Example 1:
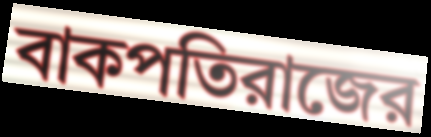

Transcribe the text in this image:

বাকপতিরাজের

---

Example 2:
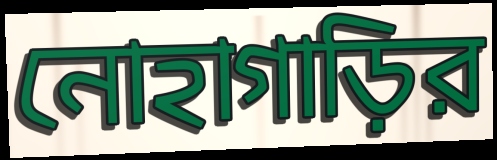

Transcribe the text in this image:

নোহাগাড়ির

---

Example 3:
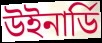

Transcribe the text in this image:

উইনার্ডি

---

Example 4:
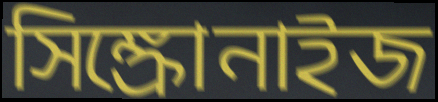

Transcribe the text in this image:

সিঙ্ক্রোনাইজ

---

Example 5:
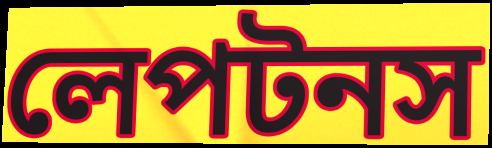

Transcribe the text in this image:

লেপটনস